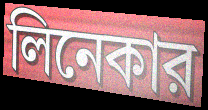
লিনেকার